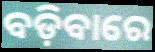
ବଡ଼ିବାରେ